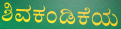
ಶಿವಕಂಡಿಕೆಯ